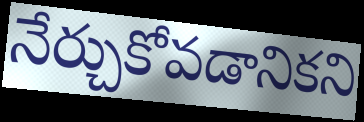
నేర్చుకోవడానికని